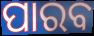
ପାରବ